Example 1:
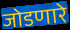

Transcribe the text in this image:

जोडणारे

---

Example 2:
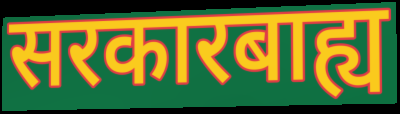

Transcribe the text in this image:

सरकारबाह्य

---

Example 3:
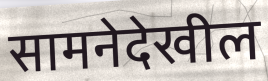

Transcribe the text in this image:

सामनेदेखील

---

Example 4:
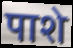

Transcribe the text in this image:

पाशे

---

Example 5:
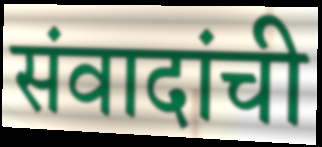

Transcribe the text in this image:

संवादांची